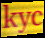
kyc